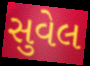
સુવેલ